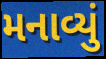
મનાવ્યું